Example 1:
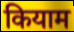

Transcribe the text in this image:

कियाम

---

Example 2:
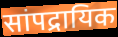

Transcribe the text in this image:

सांपद्रायिक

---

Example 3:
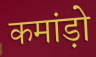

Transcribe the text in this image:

कमांड़ो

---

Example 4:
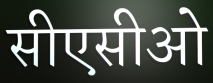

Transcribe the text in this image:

सीएसीओ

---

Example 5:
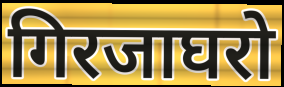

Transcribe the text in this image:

गिरजाघरो